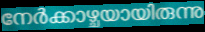
നേർക്കാഴ്ചയായിരുന്നു